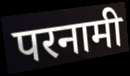
परनामी